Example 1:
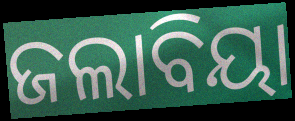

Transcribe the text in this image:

ଜଲାବିୟା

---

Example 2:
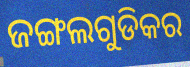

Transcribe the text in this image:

ଜଙ୍ଗଲଗୁଡିକର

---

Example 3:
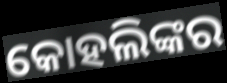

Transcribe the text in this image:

କୋହଲିଙ୍କର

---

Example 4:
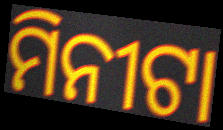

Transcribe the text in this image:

ମିନୀଟା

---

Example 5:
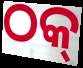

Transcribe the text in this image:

ଠକ୍